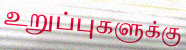
உறுப்புகளுக்கு